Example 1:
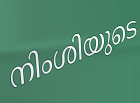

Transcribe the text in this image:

നിംശിയുടെ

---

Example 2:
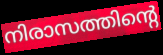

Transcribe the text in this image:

നിരാസത്തിന്റെ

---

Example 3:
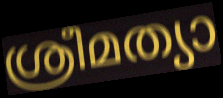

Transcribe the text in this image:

ശ്രീമത്യാ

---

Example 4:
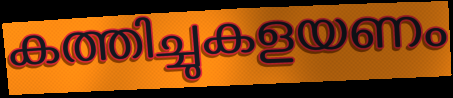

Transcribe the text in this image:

കത്തിച്ചുകളയണം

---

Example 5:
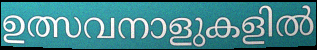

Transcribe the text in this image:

ഉത്സവനാളുകളിൽ